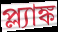
প্ল্যাঙ্ক